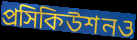
প্রসিকিউশনও